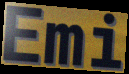
Emi